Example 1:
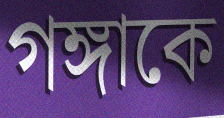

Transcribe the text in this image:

গঙ্গাকে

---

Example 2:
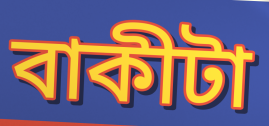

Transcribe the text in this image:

বাকীটা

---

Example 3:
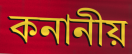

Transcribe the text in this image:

কনানীয়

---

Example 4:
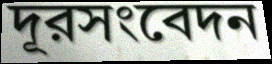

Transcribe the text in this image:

দূরসংবেদন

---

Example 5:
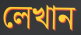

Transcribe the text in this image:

লেখান